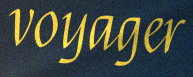
voyager